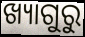
ଖ୍ୟାଗୁରୁ